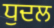
ਧੁਦਲ